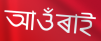
আওঁৰাই